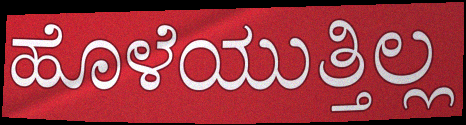
ಹೊಳೆಯುತ್ತಿಲ್ಲ